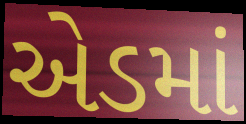
એડમાં